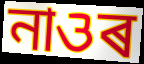
নাওৰ